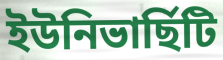
ইউনিভাৰ্ছিটি